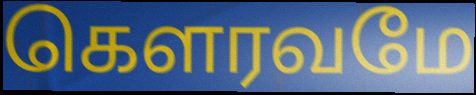
கௌரவமே